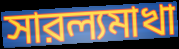
সারল্যমাখা